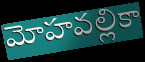
మోహవల్లికా